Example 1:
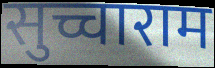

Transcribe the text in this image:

सुच्चाराम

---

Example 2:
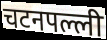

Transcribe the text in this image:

चटनपल्ली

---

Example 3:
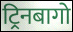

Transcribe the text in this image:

ट्रिनबागो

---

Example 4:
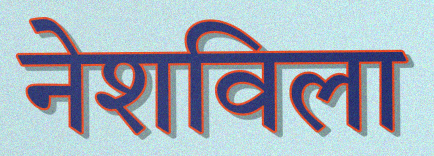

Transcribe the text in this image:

नेशविला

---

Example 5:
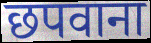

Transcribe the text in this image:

छपवाना